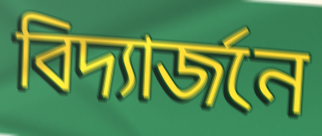
বিদ্যার্জনে